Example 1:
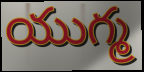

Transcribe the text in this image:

యుగ్మ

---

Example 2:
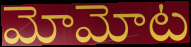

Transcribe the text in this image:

మోమోట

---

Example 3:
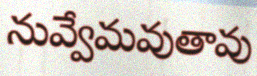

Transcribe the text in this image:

నువ్వేమవుతావు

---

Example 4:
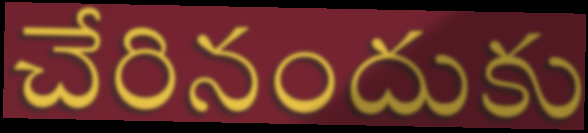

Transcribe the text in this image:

చేరినందుకు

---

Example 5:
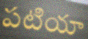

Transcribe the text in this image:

పటియా